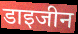
डाइजीन